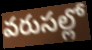
వరుసల్లో